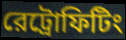
রেট্রোফিটিং